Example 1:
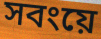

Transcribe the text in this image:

সবংয়ে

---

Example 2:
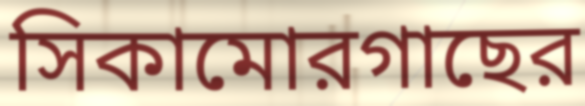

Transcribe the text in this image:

সিকামোরগাছের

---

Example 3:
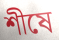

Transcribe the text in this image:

শীষে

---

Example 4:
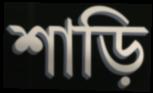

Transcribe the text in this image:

শাড়ি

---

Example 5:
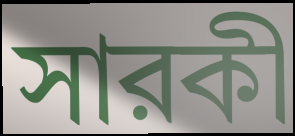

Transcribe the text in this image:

সারকী